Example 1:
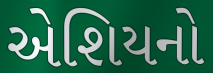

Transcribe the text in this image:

એશિયનો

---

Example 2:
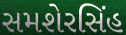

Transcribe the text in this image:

સમશેરસિંહ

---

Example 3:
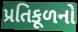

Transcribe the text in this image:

પ્રતિકૂળનો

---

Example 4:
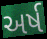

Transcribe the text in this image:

અર્ષ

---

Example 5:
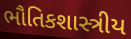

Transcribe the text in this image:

ભૌતિકશાસ્ત્રીય